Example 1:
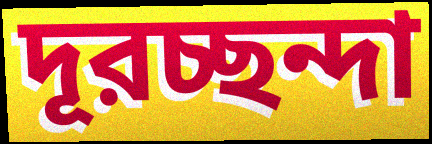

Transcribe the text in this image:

দূরচ্ছন্দা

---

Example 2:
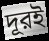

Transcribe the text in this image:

দূরই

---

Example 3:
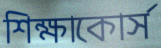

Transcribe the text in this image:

শিক্ষাকোর্স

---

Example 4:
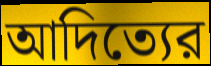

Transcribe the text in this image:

আদিত্যের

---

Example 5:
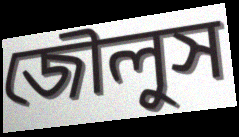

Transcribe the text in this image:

জৌলুস